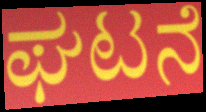
ಘಟನೆ